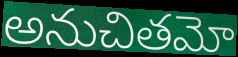
అనుచితమో